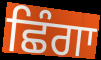
ਛਿੰਗਾ